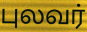
புலவர்